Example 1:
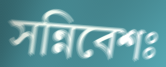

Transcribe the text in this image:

সন্নিবেশঃ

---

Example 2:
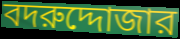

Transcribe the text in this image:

বদরুদ্দোজার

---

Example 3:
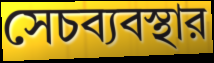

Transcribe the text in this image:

সেচব্যবস্থার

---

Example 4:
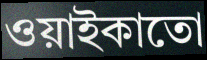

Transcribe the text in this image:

ওয়াইকাতো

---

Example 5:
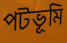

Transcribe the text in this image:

পটভূমি